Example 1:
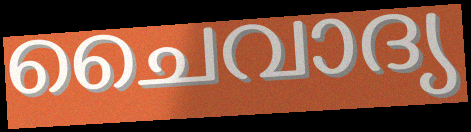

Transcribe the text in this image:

ചൈവാദ്യ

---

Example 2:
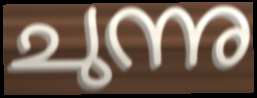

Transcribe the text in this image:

ചുന്നു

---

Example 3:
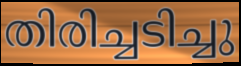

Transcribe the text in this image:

തിരിച്ചടിച്ചു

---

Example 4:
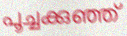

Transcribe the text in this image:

പൂച്ചക്കുഞ്ഞ്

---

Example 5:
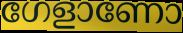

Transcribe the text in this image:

ഗേളാണോ